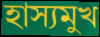
হাস্যমুখ